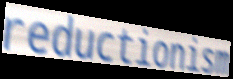
reductionism